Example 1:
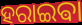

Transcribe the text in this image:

ହରାଇଵା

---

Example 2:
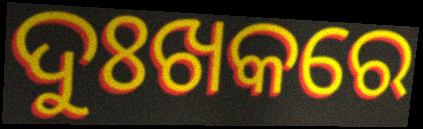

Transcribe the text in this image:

ଦୁଃଖକରେ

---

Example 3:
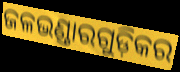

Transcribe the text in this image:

ଜଳଭଣ୍ଡାରଗୁଡ଼ିକର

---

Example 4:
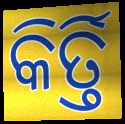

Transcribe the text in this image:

କିର୍ତ୍ତି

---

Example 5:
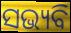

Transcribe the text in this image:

ସଭ୍ୟବି